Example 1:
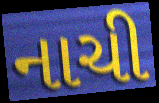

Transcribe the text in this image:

નાચી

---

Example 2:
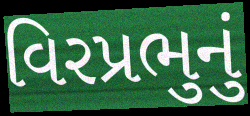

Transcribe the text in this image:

વિરપ્રભુનું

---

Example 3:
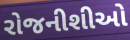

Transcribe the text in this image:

રોજનીશીઓ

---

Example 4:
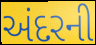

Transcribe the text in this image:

અંદરની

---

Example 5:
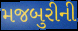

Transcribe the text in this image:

મજબુરીની